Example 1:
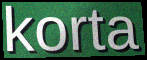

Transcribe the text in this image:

korta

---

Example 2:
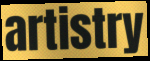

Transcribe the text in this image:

artistry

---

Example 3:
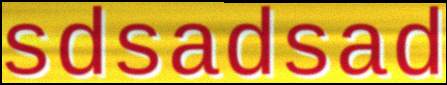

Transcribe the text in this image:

sdsadsad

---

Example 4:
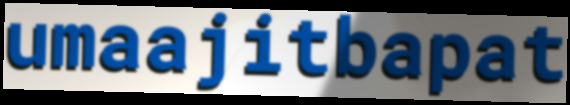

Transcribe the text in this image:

umaajitbapat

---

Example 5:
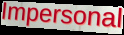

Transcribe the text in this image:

Impersonal